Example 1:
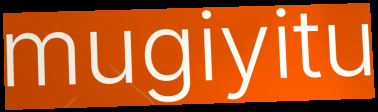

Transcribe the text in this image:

mugiyitu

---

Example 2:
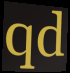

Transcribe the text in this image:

qd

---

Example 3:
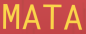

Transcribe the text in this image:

MATA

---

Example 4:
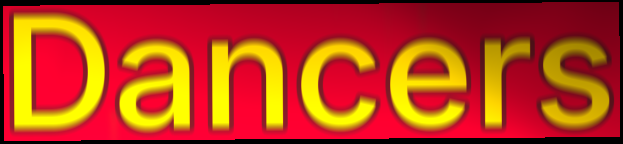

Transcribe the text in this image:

Dancers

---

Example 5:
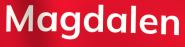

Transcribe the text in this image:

Magdalen